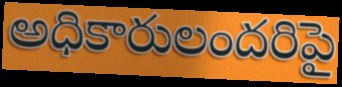
అధికారులందరిపై